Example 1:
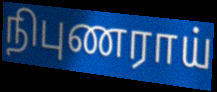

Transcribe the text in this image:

நிபுணராய்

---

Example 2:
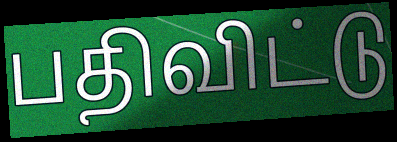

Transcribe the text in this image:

பதிவிட்டு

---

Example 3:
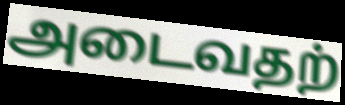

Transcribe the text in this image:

அடைவதற்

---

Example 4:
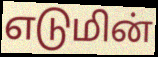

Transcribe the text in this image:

எடுமின்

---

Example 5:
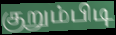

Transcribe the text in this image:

குறும்பிடி